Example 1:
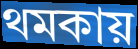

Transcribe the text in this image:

থমকায়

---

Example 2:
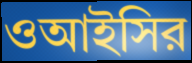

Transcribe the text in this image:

ওআইসির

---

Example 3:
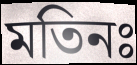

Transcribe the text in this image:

মতিনঃ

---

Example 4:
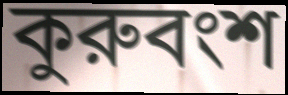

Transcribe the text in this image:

কুরুবংশ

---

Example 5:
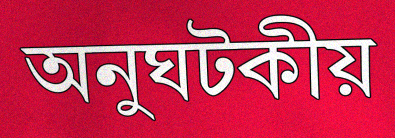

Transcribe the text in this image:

অনুঘটকীয়